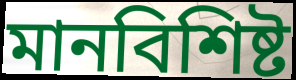
মানবিশিষ্ট